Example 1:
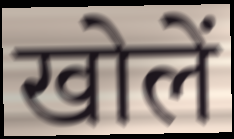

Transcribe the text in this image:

खोलें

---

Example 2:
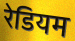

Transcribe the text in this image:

रेडियम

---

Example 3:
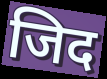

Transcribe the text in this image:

जिद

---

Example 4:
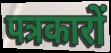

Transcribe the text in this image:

पत्रकारों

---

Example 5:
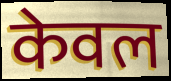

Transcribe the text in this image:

केवल